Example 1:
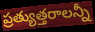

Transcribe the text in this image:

ప్రత్యుత్తరాలన్నీ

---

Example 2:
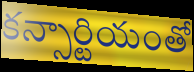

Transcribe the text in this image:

కన్సార్టియంతో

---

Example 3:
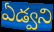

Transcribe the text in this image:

ఏడ్వని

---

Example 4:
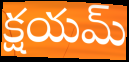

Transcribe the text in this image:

క్షయమ్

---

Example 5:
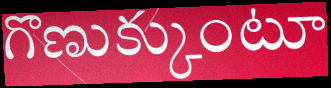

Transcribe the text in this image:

గొణుక్కుంటూ